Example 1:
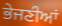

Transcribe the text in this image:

ਭੇਜਣੀਆਂ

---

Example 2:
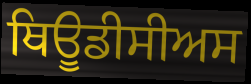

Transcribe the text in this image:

ਥਿਊਡੀਸੀਅਸ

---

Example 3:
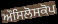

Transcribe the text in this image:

ਔਸਿਲੋਸਕੋਪ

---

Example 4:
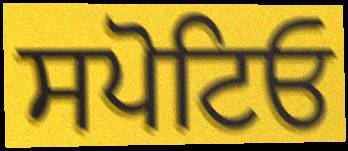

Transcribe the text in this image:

ਸਪੋਟਿਓ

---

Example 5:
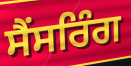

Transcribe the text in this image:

ਸੈਂਸਰਿੰਗ